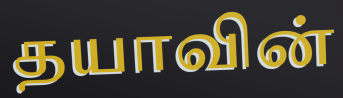
தயாவின்